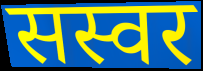
सस्वर